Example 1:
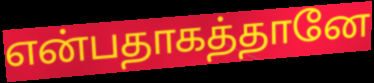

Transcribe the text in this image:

என்பதாகத்தானே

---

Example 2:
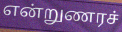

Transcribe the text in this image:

என்றுணரச்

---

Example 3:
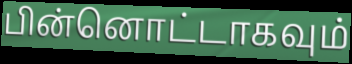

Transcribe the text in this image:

பின்னொட்டாகவும்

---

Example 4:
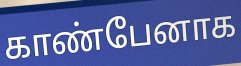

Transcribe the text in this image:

காண்பேனாக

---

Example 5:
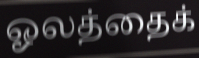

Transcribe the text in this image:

ஓலத்தைக்